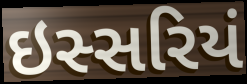
ઇસ્સરિયં